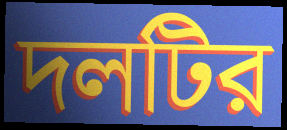
দলটির